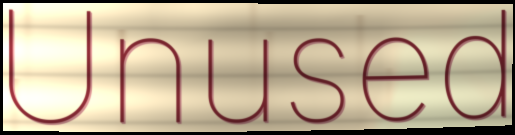
Unused